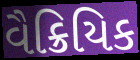
વૈક્રિયિક